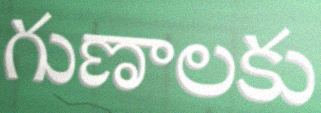
గుణాలకు